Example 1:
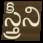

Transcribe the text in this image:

స్త్రీని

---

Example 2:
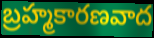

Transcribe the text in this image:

బ్రహ్మకారణవాద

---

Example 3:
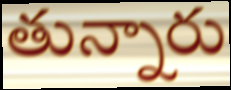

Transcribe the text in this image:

తున్నారు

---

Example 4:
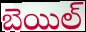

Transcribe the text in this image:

బెయిల్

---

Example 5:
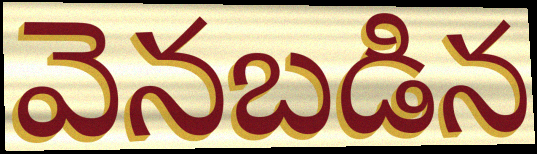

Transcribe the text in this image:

వెనబడిన